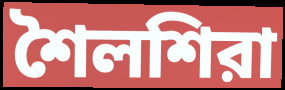
শৈলশিরা